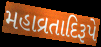
મહાવ્રતાદિરૂપે